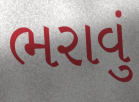
ભરાવું